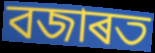
বজাৰত